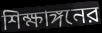
শিক্ষাঙ্গনের